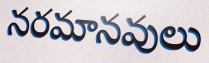
నరమానవులు